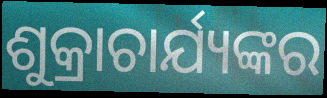
ଶୁକ୍ରାଚାର୍ଯ୍ୟଙ୍କର